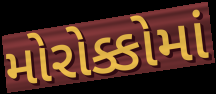
મોરોક્કોમાં